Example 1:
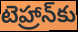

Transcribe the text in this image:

టెహ్రాన్‌కు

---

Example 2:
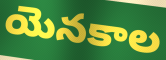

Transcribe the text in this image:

యెనకాల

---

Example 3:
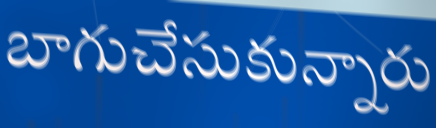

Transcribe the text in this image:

బాగుచేసుకున్నారు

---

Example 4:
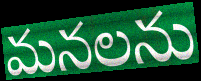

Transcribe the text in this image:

మనలను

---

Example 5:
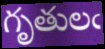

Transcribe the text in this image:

గృతులఁ